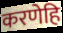
करणेहि